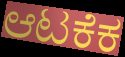
ಆಟಕೆಕ